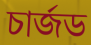
চার্জড